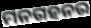
ମନଗହନର